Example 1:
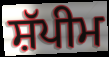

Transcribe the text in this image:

ਸ਼ੱਪੀਮ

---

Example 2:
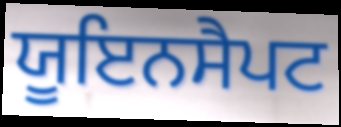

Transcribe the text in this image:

ਯੂਇਨਸੈਪਟ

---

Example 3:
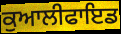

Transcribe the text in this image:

ਕੁਆਲੀਫਾਇਡ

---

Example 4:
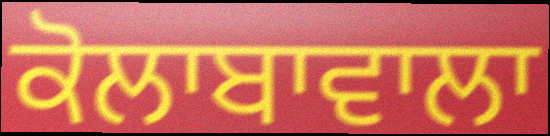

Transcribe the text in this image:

ਕੋਲਾਬਾਵਾਲਾ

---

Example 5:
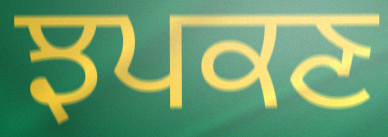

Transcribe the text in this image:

ਝਪਕਣ